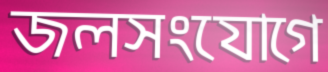
জলসংযোগে